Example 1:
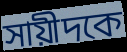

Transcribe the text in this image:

সায়ীদকে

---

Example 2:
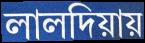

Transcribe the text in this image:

লালদিয়ায়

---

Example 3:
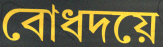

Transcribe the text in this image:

বোধদয়ে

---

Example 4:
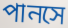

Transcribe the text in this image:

পানসে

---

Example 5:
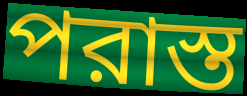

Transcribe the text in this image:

পরাস্ত